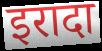
इरादा